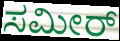
ಸಮೀರ್